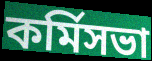
কর্মিসভা